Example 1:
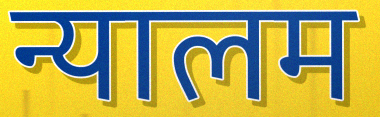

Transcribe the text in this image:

न्यालम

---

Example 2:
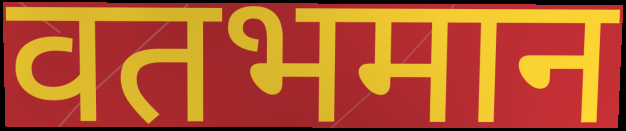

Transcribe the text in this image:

वतभमान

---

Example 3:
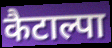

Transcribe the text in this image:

कैटाल्पा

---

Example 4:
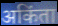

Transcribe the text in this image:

अकिंता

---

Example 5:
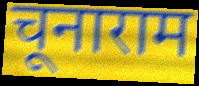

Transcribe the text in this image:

चूनाराम